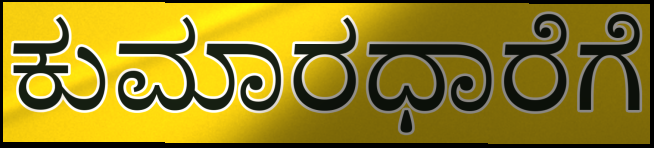
ಕುಮಾರಧಾರೆಗೆ